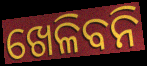
ଖେଳିବନି